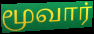
மூவார்